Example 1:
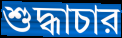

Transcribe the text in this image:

শুদ্ধাচার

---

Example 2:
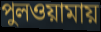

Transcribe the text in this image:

পুলওয়ামায়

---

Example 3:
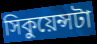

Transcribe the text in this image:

সিকুয়েন্সটা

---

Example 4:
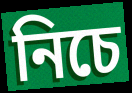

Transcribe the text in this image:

নিচে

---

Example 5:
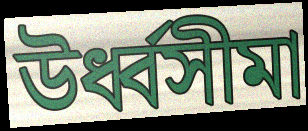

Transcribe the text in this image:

উর্ধ্বসীমা